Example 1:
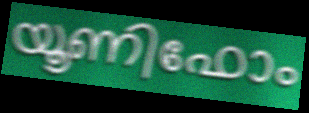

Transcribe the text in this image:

യൂണിഫോം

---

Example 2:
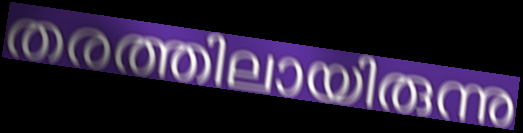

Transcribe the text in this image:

തരത്തിലായിരുന്നു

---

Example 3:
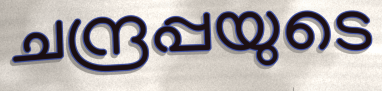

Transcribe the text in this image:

ചന്ദ്രപ്പയുടെ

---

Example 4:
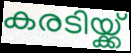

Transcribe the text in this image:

കരടിയ്ക്ക്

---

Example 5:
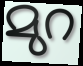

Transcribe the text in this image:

മുറ